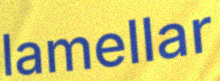
lamellar